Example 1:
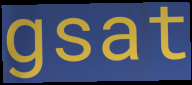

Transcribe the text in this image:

gsat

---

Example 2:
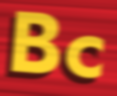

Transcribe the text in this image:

Bc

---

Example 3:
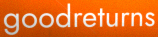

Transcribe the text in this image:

goodreturns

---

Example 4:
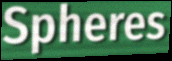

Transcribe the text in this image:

Spheres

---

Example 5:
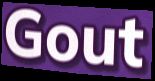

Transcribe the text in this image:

Gout